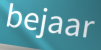
bejaar